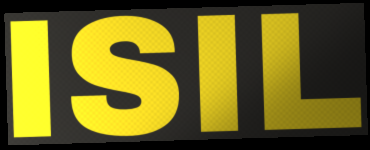
ISIL